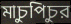
মাচুপিচুর